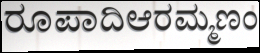
ರೂಪಾದಿಆರಮ್ಮಣಂ